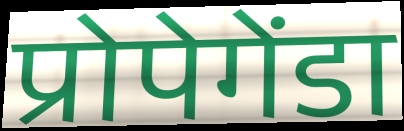
प्रोपेगेंडा